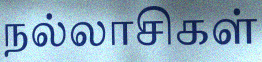
நல்லாசிகள்